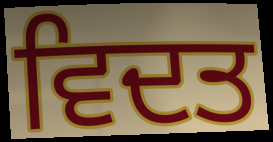
ਵਿਦਤ